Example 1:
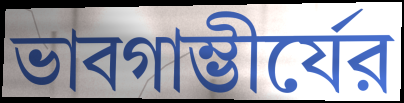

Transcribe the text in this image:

ভাবগাম্ভীর্যের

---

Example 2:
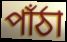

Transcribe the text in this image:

পাঁঠা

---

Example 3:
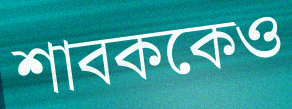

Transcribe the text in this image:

শাবককেও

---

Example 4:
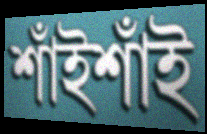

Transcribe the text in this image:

শাঁইশাঁই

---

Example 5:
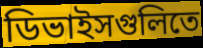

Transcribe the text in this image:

ডিভাইসগুলিতে